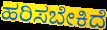
ಹರಿಸಬೇಕಿದೆ